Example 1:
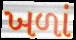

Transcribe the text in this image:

ખળાં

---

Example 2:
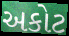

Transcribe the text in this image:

અકોટ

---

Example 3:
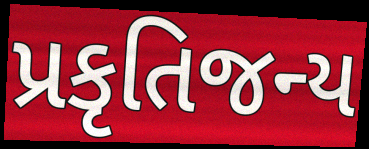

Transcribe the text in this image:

પ્રકૃતિજન્ય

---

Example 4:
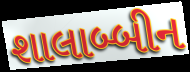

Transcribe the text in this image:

શાલાબ્બીન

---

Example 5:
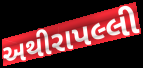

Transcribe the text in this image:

અથીરાપલ્લી